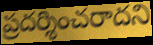
ప్రదర్శించరాదని